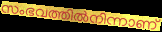
സംഭവത്തിൽനിന്നാണ്